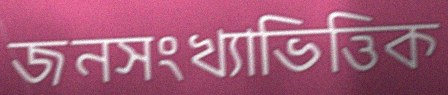
জনসংখ্যাভিত্তিক